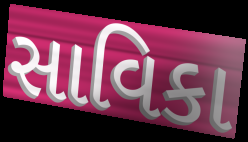
સાવિકા